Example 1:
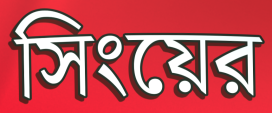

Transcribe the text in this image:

সিংয়ের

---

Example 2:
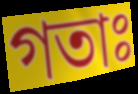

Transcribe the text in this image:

গতাঃ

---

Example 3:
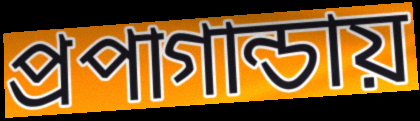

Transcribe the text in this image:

প্রপাগান্ডায়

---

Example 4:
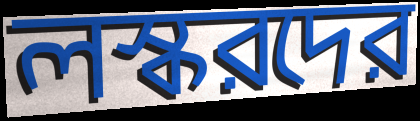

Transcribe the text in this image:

লস্করদের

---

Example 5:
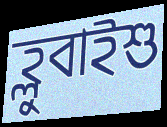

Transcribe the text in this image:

হ্লুবাইশু